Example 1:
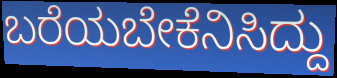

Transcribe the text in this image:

ಬರೆಯಬೇಕೆನಿಸಿದ್ದು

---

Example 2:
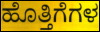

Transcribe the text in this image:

ಹೊತ್ತಿಗೆಗಳ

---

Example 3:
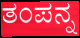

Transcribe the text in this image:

ತಂಪನ್ನ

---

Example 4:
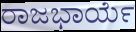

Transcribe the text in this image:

ರಾಜಭಾರ್ಯೆ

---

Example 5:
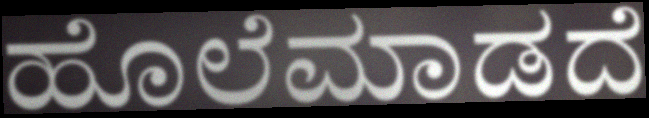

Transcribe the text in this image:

ಹೊಲೆಮಾಡದೆ